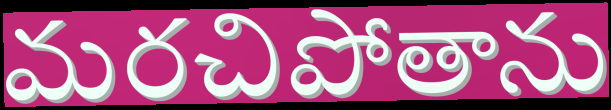
మరచిపోతాను